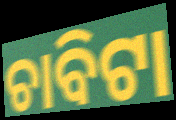
ଚାବିଟା